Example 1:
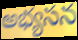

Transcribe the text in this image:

అభ్యసన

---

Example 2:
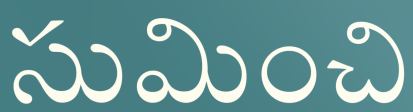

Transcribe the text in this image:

సుమించి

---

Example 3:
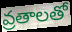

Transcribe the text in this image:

వ్రతాలతో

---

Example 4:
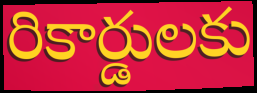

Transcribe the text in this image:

రికార్డులకు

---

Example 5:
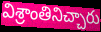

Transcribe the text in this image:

విశ్రాంతినిచ్చారు